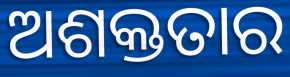
ଅଶକ୍ତତାର